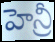
హెన్రీ